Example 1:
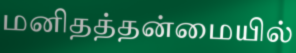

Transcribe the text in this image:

மனிதத்தன்மையில்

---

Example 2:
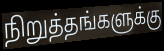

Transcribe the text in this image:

நிறுத்தங்களுக்கு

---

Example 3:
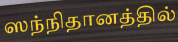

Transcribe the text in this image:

ஸந்நிதானத்தில்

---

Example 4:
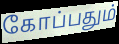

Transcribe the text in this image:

கோப்பதும்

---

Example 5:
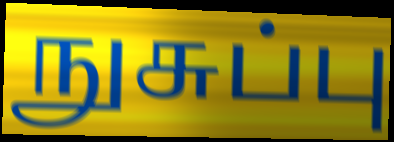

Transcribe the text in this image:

நுசுப்பு